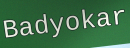
Badyokar